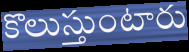
కొలుస్తుంటారు